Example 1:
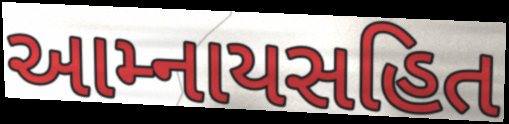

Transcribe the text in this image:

આમ્નાયસહિત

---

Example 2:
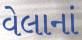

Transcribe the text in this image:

વેલાનાં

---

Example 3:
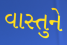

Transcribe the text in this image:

વાસ્તુને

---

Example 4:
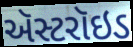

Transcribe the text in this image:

ઍસ્ટરૉઇડ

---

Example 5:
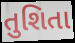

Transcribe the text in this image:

તુશિતા